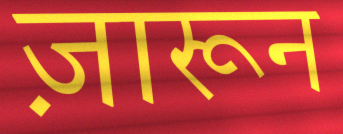
ज़ारून